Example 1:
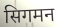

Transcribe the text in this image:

सिगमन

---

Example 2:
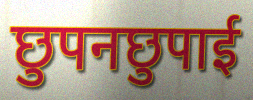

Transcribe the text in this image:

छुपनछुपाई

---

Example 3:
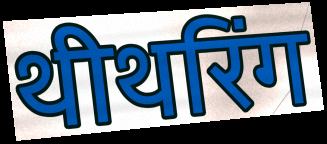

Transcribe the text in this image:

थीथरिंग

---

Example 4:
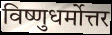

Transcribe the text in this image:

विष्णुधर्मोत्तर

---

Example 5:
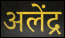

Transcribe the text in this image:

अलेंद्र